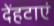
देंहटाएं